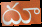
దూ